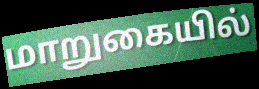
மாறுகையில்